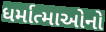
ધર્માત્માઓનો